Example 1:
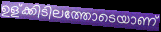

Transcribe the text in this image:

ഉള്ക്കിടിലത്തോടെയാണ്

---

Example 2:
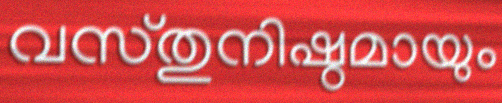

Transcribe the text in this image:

വസ്തുനിഷ്ഠമായും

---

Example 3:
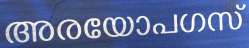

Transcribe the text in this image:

അരയോപഗസ്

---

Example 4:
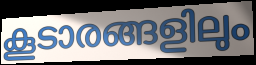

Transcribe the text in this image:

കൂടാരങ്ങളിലും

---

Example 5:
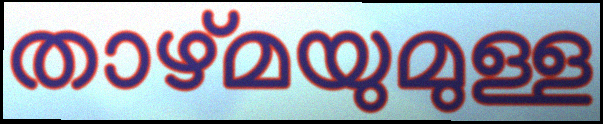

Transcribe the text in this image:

താഴ്മയുമുള്ള